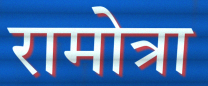
रामोत्रा